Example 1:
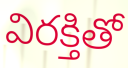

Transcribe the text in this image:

విరక్తితో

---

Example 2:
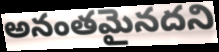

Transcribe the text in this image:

అనంతమైనదని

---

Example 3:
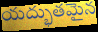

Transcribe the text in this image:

యద్భుతమైన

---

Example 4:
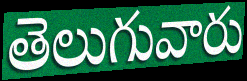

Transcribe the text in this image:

తెలుగువారు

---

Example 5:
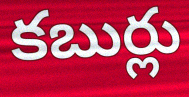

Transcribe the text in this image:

కబుర్లు